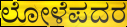
ಲೋಳೆಪದರ